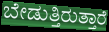
ಬೇಡುತ್ತಿರುತ್ತಾರೆ